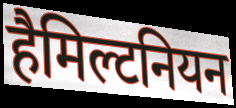
हैमिल्टनियन